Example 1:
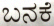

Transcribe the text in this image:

ಬನಕೆ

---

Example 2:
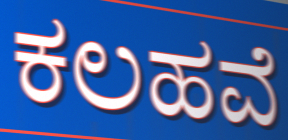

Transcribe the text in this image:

ಕಲಹವೆ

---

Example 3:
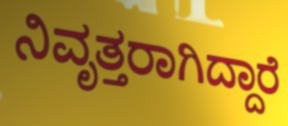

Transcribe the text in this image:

ನಿವೃತ್ತರಾಗಿದ್ದಾರೆ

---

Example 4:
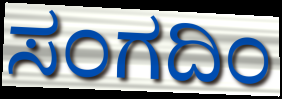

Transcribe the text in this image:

ಸಂಗದಿಂ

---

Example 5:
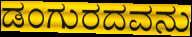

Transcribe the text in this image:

ಡಂಗುರದವನು